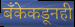
बँकेकडूनही